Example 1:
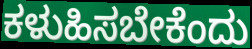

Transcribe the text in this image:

ಕಳುಹಿಸಬೇಕೆಂದು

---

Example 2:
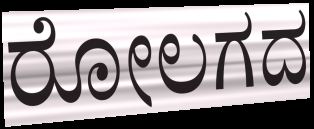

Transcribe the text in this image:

ರೋಲಗದ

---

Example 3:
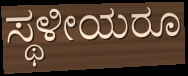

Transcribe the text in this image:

ಸ್ಥಳೀಯರೂ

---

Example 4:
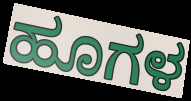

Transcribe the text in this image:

ಹೂಗಳ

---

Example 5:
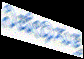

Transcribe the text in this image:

ನಿಷೇಧಿಸುತ್ತ